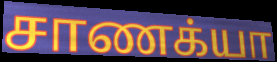
சாணக்யா